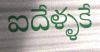
ఐదేళ్ళకే